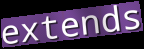
extends